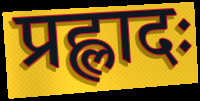
प्रह्लादः